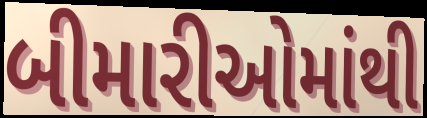
બીમારીઓમાંથી